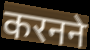
करनने